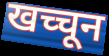
खच्चून